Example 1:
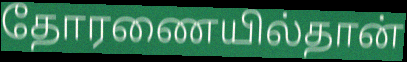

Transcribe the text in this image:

தோரணையில்தான்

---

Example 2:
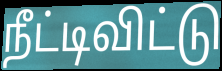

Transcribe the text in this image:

நீட்டிவிட்டு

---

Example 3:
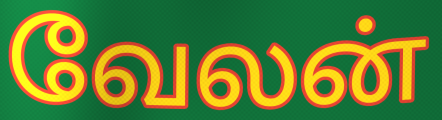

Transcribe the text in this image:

வேலன்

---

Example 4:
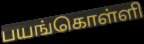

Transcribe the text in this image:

பயங்கொள்ளி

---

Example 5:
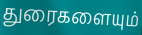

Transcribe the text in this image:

துரைகளையும்